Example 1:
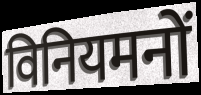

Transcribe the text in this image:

विनियमनों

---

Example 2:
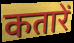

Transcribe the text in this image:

कतारें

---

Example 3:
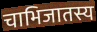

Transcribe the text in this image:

चाभिजातस्य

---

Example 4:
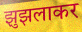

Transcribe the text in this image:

झुझलाकर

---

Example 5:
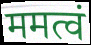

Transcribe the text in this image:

ममत्वं